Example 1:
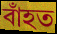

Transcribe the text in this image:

বাঁহত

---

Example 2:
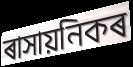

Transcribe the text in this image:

ৰাসায়নিকৰ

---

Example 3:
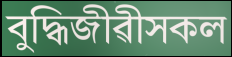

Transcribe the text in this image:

বুদ্ধিজীৱীসকল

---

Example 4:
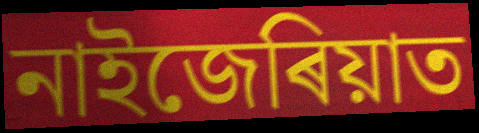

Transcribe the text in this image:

নাইজেৰিয়াত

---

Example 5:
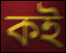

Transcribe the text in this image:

কই